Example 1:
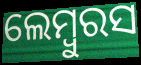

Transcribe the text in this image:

ଲେମ୍ବୁରସ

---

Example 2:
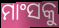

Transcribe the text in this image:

ମାଂସକୁ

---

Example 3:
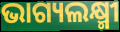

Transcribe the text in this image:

ଭାଗ୍ୟଲକ୍ଷ୍ମୀ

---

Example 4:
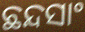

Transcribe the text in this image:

ଛନ୍ଦସାଂ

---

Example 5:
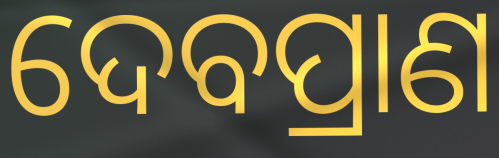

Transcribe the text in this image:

ଦେବପ୍ରାଣ